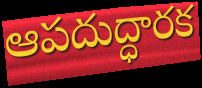
ఆపదుద్ధారక